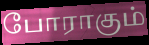
போராகும்